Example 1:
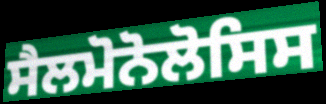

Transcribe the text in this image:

ਸੈਲਮੋਨੋਲੋਸਿਸ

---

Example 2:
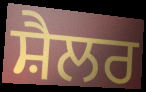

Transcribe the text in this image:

ਸ਼ੈਲਰ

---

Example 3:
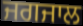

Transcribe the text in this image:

ਜਗਜਾਲ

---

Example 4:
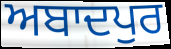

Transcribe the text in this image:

ਅਬਾਦਪੁਰ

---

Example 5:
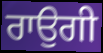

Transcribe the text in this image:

ਰਾਉਗੀ